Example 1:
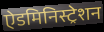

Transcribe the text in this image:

ऐडमिनिस्ट्रेशन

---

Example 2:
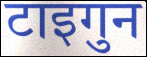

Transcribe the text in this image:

टाइगुन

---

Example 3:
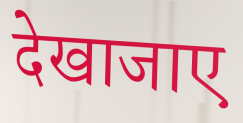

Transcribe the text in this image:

देखाजाए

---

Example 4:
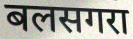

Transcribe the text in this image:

बलसगरा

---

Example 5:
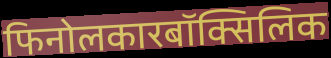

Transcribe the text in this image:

फिनोलकारबॉक्सिलिक